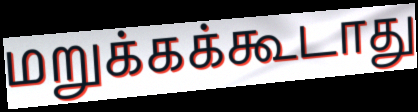
மறுக்கக்கூடாது